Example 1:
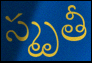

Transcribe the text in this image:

స్మృతీ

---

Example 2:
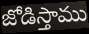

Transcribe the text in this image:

జోడిస్తాము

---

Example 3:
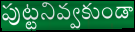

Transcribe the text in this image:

పుట్టనివ్వకుండా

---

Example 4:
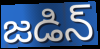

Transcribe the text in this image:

జడిన్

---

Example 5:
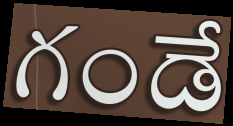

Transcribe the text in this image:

గండే